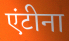
एंटीना